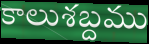
కాలుశబ్దము